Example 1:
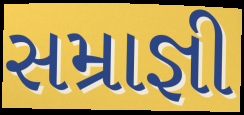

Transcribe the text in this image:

સમ્રાજ્ઞી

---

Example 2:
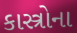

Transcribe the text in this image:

કાસ્ત્રોના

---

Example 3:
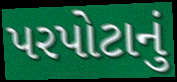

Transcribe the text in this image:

પરપોટાનું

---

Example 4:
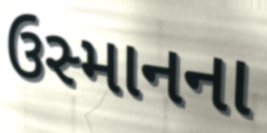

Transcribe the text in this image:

ઉસ્માનના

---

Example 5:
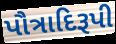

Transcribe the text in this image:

પૌત્રાદિરૂપી